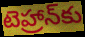
టెహ్రాన్‌కు